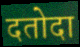
दतोदा